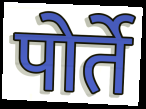
पोर्ते